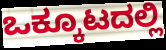
ಒಕ್ಕೂಟದಲ್ಲಿ